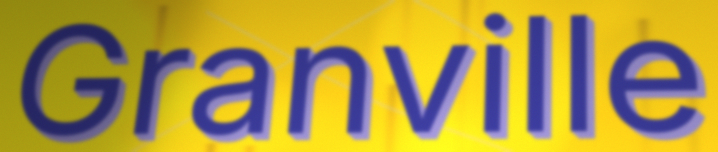
Granville